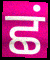
ਛਂ